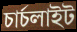
চাৰ্চলাইট